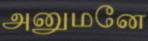
அனுமனே